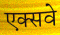
एक्सवे